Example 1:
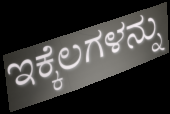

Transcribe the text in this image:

ಇಕ್ಕೆಲಗಳನ್ನು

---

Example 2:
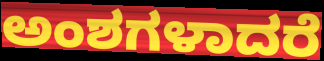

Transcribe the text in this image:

ಅಂಶಗಳಾದರೆ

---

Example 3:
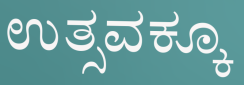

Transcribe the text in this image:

ಉತ್ಸವಕ್ಕೂ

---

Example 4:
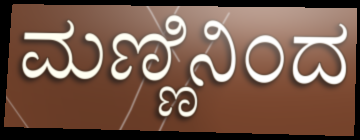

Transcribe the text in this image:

ಮಣ್ಣಿನಿಂದ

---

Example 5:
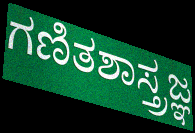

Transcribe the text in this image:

ಗಣಿತಶಾಸ್ತ್ರಜ್ಞ